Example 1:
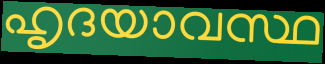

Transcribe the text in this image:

ഹൃദയാവസ്ഥ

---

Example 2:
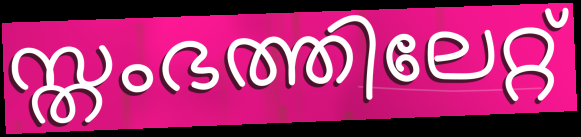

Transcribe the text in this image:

സ്തംഭത്തിലേറ്റ്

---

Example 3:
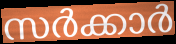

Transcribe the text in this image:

സർക്കാർ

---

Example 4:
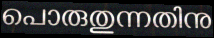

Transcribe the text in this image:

പൊരുതുന്നതിനു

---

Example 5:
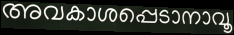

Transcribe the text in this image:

അവകാശപ്പെടാനാവൂ